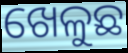
ଖେଳୁଛ